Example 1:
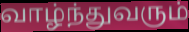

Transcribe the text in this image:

வாழ்ந்துவரும்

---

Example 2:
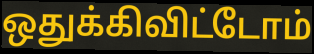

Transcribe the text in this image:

ஒதுக்கிவிட்டோம்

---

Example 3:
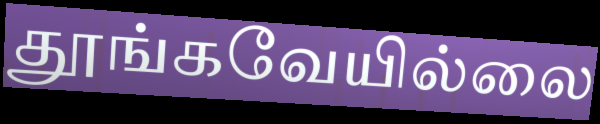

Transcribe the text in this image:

தூங்கவேயில்லை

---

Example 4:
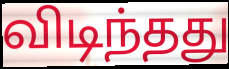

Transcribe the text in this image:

விடிந்தது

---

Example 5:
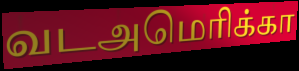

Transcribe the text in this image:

வடஅமெரிக்கா